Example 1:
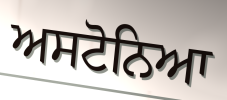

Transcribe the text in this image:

ਅਸਟੋਨਿਆ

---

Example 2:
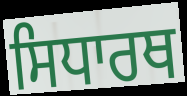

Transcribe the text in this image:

ਸਿਧਾਰਥ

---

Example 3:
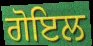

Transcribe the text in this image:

ਗੋਇਲ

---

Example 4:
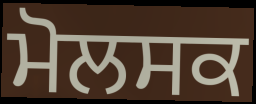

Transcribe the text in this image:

ਮੋਲਸਕ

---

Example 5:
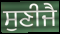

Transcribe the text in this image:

ਸੁਣੀਜੈ